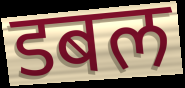
डबल